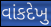
વાંકદેખુ